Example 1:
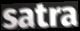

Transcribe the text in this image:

satra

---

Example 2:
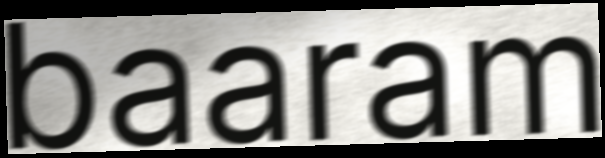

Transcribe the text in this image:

baaram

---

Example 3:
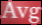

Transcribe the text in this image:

Avg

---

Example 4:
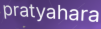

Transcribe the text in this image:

pratyahara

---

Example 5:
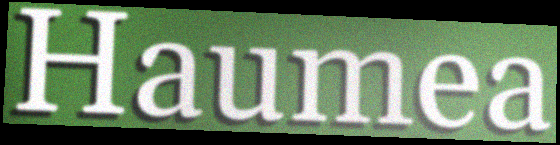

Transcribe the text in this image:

Haumea